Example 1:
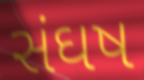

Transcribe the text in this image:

સંઘષ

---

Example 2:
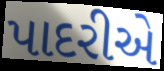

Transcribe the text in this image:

પાદરીએ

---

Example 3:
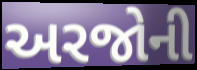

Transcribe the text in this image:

અરજોની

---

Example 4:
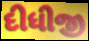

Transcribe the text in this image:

દીધીજી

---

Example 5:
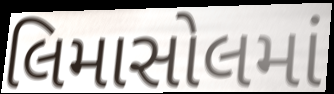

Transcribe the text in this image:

લિમાસોલમાં